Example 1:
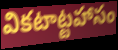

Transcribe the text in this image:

వికటాట్టహాసం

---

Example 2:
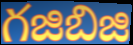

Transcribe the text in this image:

గజిబిజి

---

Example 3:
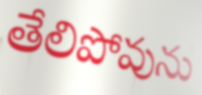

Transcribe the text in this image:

తేలిపోవును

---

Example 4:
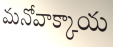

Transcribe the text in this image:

మనోవాక్కాయ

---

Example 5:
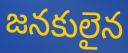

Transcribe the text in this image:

జనకులైన